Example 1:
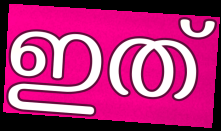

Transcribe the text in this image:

ഇത്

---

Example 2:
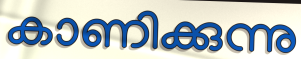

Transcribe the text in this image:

കാണിക്കുന്നു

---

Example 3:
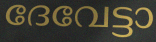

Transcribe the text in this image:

ദേവേട്ടാ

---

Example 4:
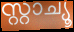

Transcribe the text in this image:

സ്റ്റാച്യൂ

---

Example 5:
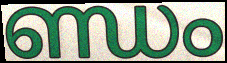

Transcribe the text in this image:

ണ്ഡം